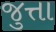
જુત્તા